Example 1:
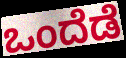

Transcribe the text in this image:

ಒಂದೆಡೆ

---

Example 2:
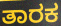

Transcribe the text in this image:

ತಾರಕ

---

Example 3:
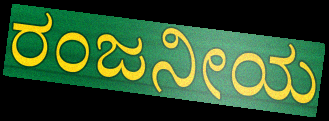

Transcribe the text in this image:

ರಂಜನೀಯ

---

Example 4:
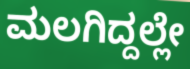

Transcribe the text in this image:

ಮಲಗಿದ್ದಲ್ಲೇ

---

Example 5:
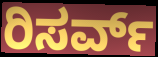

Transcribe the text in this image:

ರಿಸರ್ವ್